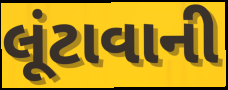
લૂંટાવાની